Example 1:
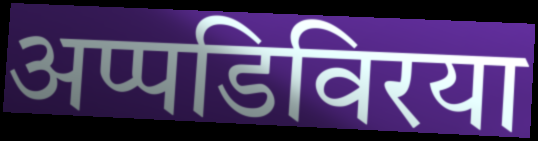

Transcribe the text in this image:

अप्पडिविरया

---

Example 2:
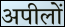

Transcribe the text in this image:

अपीलों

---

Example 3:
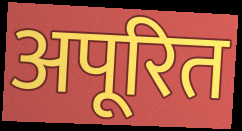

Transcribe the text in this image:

अपूरित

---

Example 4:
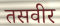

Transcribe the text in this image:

तसवीर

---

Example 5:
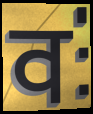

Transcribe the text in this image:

वः॑